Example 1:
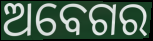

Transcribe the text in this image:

ଅବେଗର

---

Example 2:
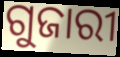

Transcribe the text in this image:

ଗୁଜାରୀ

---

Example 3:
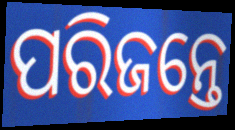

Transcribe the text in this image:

ପରିଜନ୍ତେ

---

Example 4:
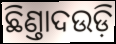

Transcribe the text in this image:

ଛିଣ୍ତାଦଉଡ଼ି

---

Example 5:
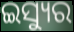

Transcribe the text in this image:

ଇସ୍ୟୁର